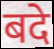
बदे